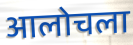
आलोचला